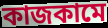
কাজকামে